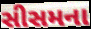
સીસમના